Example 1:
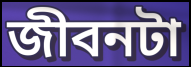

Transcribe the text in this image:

জীবনটা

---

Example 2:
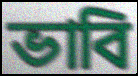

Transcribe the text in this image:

ভাবি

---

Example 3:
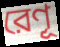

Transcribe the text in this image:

রেণূ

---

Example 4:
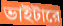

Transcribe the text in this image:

ভাইটারে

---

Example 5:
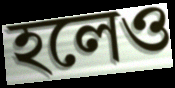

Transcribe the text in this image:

হলেও